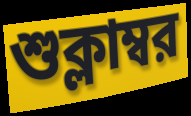
শুক্লাম্বর